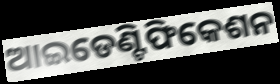
ଆଇଡେଣ୍ଟିଫିକେଶନ